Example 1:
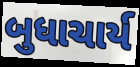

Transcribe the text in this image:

બુધાચાર્ય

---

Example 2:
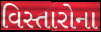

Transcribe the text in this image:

વિસ્તારોના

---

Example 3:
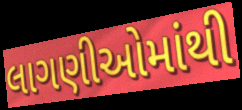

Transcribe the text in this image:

લાગણીઓમાંથી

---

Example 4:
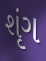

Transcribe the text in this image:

શૃંગ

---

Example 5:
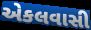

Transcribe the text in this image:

એકલવાસી